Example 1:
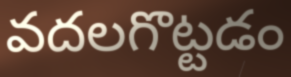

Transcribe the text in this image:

వదలగొట్టడం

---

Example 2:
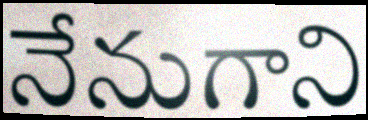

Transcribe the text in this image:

నేనుగాని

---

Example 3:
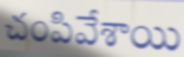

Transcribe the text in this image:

చంపివేశాయి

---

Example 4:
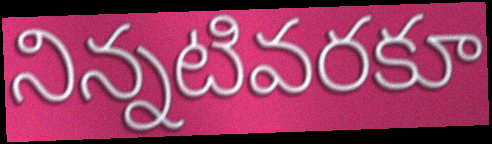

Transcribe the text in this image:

నిన్నటివరకూ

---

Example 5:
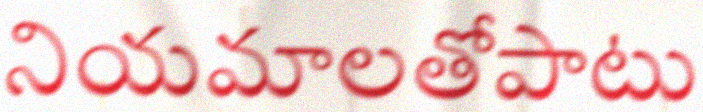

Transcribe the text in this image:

నియమాలతోపాటు